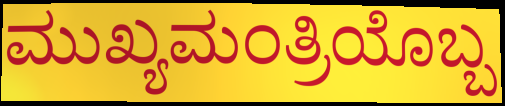
ಮುಖ್ಯಮಂತ್ರಿಯೊಬ್ಬ